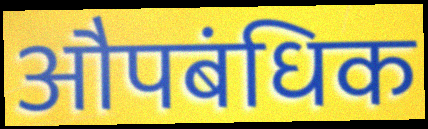
औपबंधिक